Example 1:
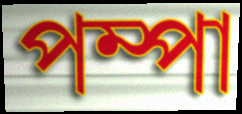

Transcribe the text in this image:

পম্পা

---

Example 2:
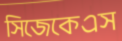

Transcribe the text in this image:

সিজেকেএস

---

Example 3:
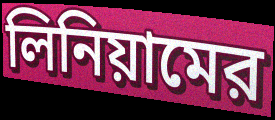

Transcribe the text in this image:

লিনিয়ামের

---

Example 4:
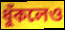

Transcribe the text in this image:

ধুঁকলেও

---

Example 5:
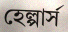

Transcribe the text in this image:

হেল্পার্স